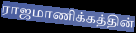
ராஜமாணிக்கத்தின்